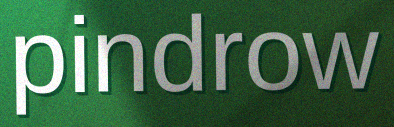
pindrow